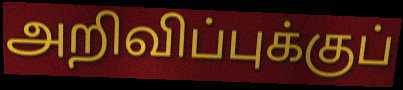
அறிவிப்புக்குப்